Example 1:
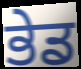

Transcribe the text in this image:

ਭੇਡ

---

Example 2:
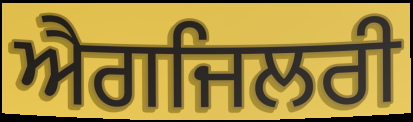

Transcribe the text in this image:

ਐਗਜਿਲਰੀ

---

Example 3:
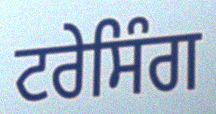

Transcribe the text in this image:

ਟਰੇਸਿੰਗ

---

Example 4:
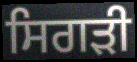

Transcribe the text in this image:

ਸਿਗੜੀ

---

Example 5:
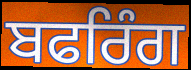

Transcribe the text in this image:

ਬਫਰਿੰਗ